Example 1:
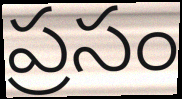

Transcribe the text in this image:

ప్రసం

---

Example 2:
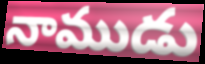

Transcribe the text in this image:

నాముడు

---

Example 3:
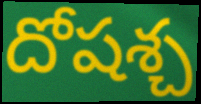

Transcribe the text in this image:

దోషశ్చ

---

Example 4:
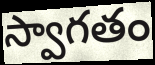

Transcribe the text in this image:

స్వాగతం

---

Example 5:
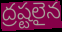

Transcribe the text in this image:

ద్రష్టలైన